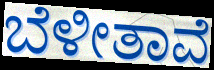
ಬೆಳೀತಾವೆ